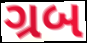
ગ્રબ